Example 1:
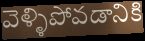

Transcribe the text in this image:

వెళ్ళిపోవడానికి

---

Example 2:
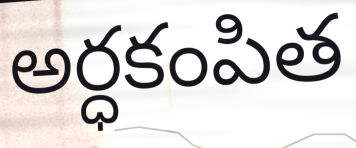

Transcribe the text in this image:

అర్ధకంపిత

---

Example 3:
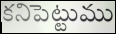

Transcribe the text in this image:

కనిపెట్టుము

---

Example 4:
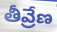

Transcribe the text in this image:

తీవ్రేణ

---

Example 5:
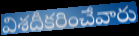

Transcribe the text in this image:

విశదీకరించేవారు